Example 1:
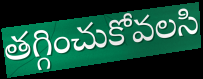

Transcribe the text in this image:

తగ్గించుకోవలసి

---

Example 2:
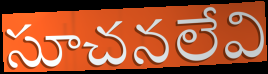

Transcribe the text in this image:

సూచనలేవి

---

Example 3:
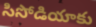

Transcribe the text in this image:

సిసోడియాకు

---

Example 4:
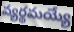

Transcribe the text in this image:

వ్యర్థమయ్యే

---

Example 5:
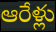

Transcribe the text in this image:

ఆరేళ్లు